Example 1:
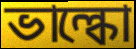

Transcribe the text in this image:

ভাল্কো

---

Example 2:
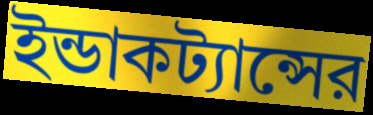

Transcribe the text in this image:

ইন্ডাকট্যান্সের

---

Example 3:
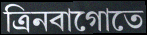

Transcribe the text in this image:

ত্রিনবাগোতে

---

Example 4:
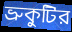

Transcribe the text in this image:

ভ্রুকুটির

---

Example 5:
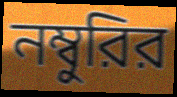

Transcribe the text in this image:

নম্বুরির